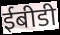
ईबीडी